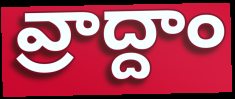
వ్రాద్దాం